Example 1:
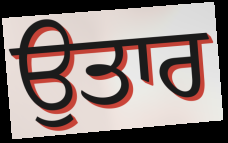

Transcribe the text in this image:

ਉਤਾਰ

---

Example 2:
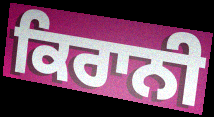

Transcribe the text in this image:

ਕਿਰਾਨੀ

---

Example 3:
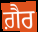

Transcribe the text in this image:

ਗ਼ੈਰ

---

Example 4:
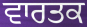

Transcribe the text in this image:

ਵਾਰਤਕ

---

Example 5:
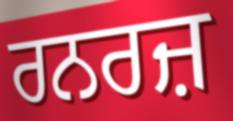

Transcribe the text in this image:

ਰਨਰਜ਼